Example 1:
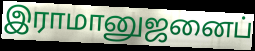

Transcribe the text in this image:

இராமானுஜனைப்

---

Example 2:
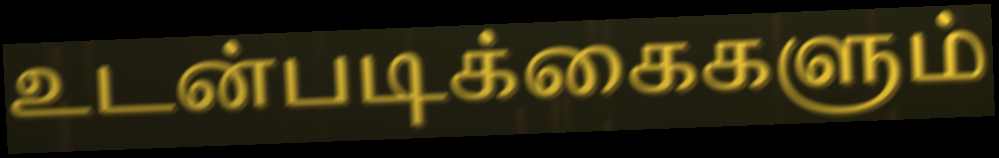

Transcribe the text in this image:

உடன்படிக்கைகளும்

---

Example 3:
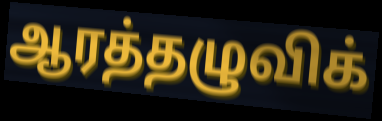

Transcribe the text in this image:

ஆரத்தழுவிக்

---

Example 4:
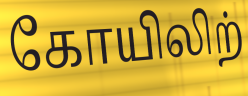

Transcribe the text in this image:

கோயிலிற்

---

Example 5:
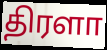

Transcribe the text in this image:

திரளா